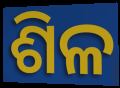
ଶିଳ